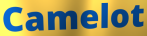
Camelot